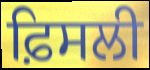
ਫ਼ਿਸਲੀ